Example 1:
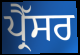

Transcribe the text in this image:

ਪ੍ਰੈੱਸਰ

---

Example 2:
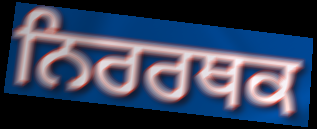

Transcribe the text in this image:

ਨਿਰਰਥਕ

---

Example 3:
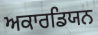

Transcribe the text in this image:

ਅਕਾਰਡਿਯਨ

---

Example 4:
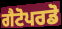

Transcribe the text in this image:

ਗੈਟੋਪਰਡੋ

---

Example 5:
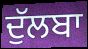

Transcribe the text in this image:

ਦੁੱਲਬਾ